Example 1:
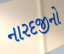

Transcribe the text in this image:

નારદજીનો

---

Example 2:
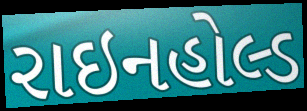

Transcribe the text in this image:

રાઇનહોલ્ડ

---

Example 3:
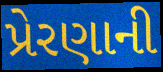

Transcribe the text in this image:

પ્રેરણાની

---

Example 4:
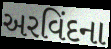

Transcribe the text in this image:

અરવિંદના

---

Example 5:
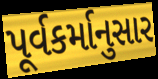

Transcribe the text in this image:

પૂર્વકર્માનુસાર